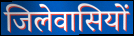
जिलेवासियों